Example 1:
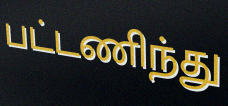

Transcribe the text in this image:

பட்டணிந்து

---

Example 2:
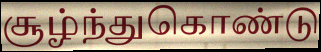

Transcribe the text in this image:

சூழ்ந்துகொண்டு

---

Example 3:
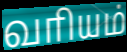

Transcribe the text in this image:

வரியம்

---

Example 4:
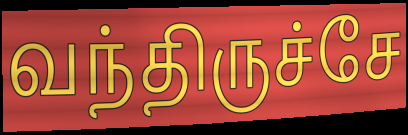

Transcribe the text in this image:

வந்திருச்சே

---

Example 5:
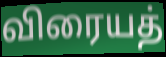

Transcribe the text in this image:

விரையத்